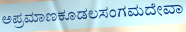
ಅಪ್ರಮಾಣಕೂಡಲಸಂಗಮದೇವಾ